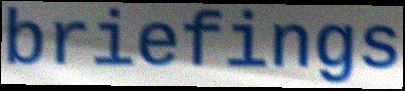
briefings